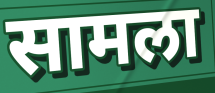
सामला